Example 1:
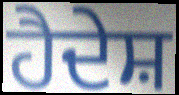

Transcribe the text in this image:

ਹੈਦੇਸ਼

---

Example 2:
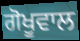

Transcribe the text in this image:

ਗੋਖੂਵਾਲ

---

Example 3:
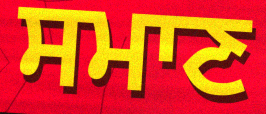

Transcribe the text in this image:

ਸਮਾਣ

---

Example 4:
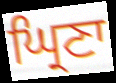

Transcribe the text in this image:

ਘ੍ਰਿਣਾ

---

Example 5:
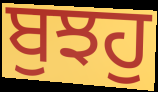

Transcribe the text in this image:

ਬੁਝਹੁ